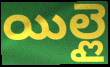
యిల్లై